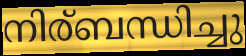
നിര്ബന്ധിച്ചു